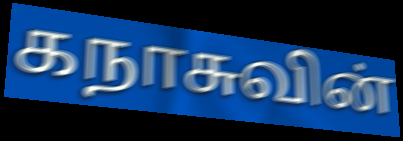
கநாசுவின்